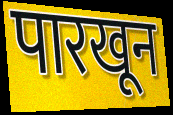
पारखून